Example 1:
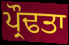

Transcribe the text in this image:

ਪ੍ਰੌਢਤਾ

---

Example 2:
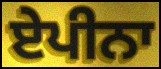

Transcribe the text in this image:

ਏਪੀਨਾ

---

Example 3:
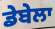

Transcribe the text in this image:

ਡੇਬੇਲਾ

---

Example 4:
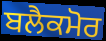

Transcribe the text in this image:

ਬਲੈਕਮੋਰ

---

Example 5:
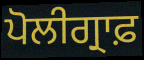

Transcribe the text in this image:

ਪੋਲੀਗ੍ਰਾਫ਼